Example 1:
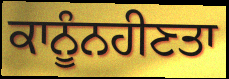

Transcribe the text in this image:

ਕਾਨੂੰਨਹੀਣਤਾ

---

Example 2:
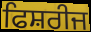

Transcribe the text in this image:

ਫਿਸ਼ਰੀਜ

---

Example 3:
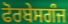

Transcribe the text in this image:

ਫੋਰਬੇਸਗੰਜ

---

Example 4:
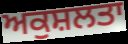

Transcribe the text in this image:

ਅਕੁਸ਼ਲਤਾ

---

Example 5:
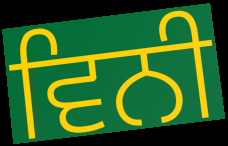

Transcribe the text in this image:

ਵਿਨੀ